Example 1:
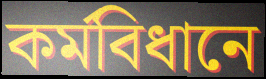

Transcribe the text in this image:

কর্মবিধানে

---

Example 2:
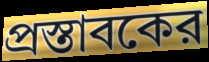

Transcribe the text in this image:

প্রস্তাবকের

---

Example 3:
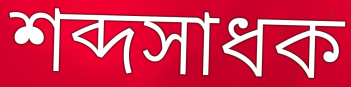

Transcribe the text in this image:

শব্দসাধক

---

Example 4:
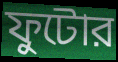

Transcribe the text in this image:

ফুটোর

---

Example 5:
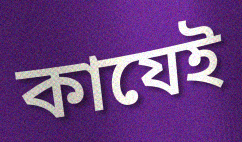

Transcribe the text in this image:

কাযেই